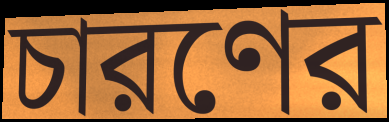
চারণের